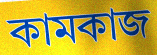
কামকাজ